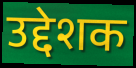
उद्देशक